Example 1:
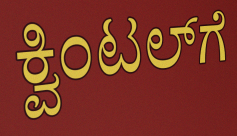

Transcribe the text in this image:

ಕ್ವಿಂಟಲ್‌ಗೆ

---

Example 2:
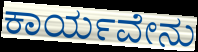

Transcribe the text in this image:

ಕಾರ್ಯವೇನು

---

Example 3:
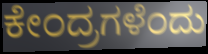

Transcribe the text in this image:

ಕೇಂದ್ರಗಳೆಂದು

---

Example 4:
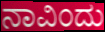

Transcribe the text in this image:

ನಾವಿಂದು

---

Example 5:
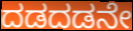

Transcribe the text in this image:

ದಡದಡನೇ